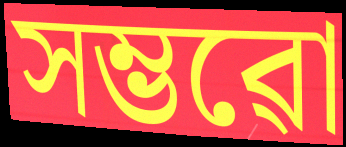
সম্ভৱো